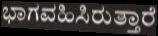
ಭಾಗವಹಿಸಿರುತ್ತಾರೆ